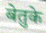
बेतुके